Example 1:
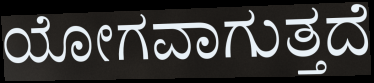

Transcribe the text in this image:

ಯೋಗವಾಗುತ್ತದೆ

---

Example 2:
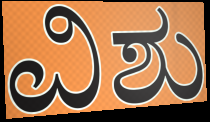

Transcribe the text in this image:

ವಿಶು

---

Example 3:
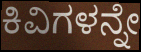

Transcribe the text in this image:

ಕಿವಿಗಳನ್ನೇ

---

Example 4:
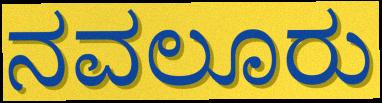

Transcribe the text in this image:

ನವಲೂರು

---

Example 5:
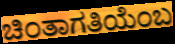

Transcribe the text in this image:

ಚಿಂತಾಗತಿಯೆಂಬ